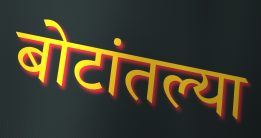
बोटांतल्या